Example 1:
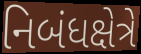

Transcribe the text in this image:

નિબંધક્ષેત્રે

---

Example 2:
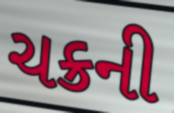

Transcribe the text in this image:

ચક્રની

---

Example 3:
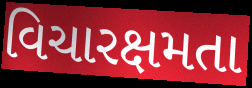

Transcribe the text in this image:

વિચારક્ષમતા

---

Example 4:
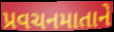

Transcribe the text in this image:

પ્રવચનમાતાને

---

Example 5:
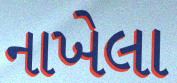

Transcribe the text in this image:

નાખેલા